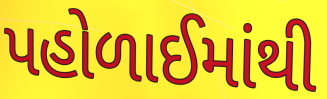
પહોળાઈમાંથી